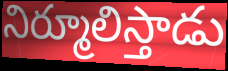
నిర్మూలిస్తాడు